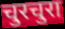
चुरचुरा